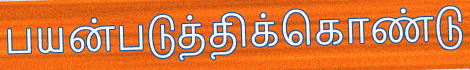
பயன்படுத்திக்கொண்டு